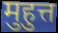
मुहुत्त